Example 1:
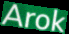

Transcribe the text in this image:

Arok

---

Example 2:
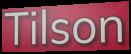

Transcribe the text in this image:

Tilson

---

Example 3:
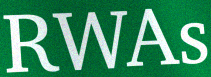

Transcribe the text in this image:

RWAs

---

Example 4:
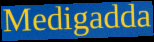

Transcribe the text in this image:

Medigadda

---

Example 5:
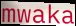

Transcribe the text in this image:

mwaka